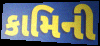
કામિની